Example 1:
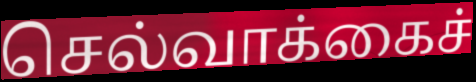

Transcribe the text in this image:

செல்வாக்கைச்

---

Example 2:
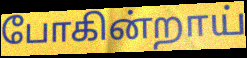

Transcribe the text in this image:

போகின்றாய்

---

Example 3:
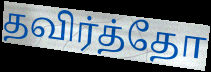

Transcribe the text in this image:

தவிர்த்தோ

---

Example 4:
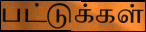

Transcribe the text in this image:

பட்டுக்கள்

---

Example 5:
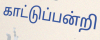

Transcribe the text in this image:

காட்டுப்பன்றி